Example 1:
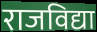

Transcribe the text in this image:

राजविद्या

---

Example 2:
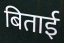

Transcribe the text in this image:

बिताई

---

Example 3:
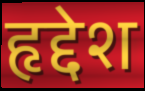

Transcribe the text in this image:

हृद्देश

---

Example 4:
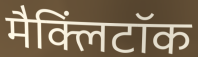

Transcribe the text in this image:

मैक्लिंटॉक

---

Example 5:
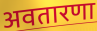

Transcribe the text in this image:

अवतारणा